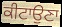
ਕੀਟਾਉਣਾ